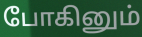
போகினும்